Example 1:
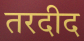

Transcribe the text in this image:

तरदीद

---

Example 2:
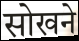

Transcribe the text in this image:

सोखने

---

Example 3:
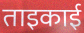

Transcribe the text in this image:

ताइकाई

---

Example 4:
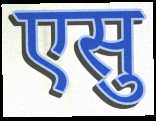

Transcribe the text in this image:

एसु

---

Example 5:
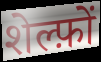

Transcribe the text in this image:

शेल्फ़ों